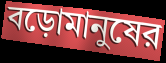
বড়োমানুষের